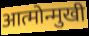
आत्मोन्मुखी